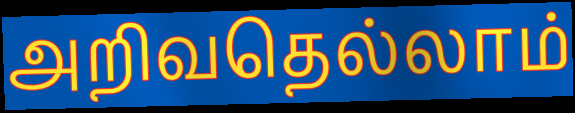
அறிவதெல்லாம்